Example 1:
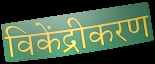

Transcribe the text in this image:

विकेंद्रीकरण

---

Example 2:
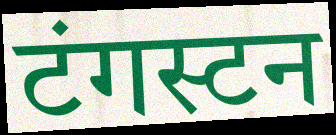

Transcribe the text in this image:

टंगस्टन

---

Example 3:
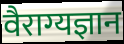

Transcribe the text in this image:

वैराग्यज्ञान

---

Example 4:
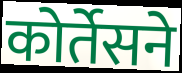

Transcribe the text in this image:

कोर्तेसने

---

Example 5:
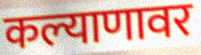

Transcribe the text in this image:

कल्याणावर